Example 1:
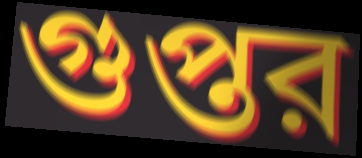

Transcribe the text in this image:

গুপ্তর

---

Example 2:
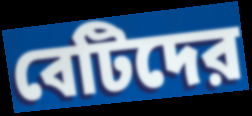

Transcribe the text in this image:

বেটিদের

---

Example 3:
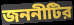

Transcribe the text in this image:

জননীটির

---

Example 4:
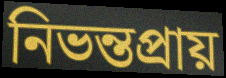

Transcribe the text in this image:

নিভন্তপ্রায়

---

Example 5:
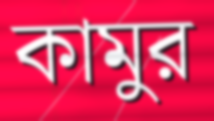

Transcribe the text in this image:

কামুর